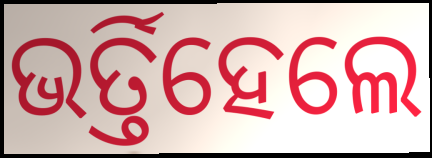
ଭର୍ତ୍ତିହେଲେ